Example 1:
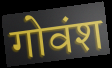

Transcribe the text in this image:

गोवंश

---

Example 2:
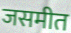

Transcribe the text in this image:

जसमीत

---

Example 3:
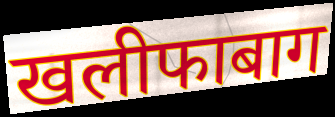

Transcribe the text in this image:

खलीफाबाग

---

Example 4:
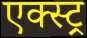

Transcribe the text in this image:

एक्स्ट्र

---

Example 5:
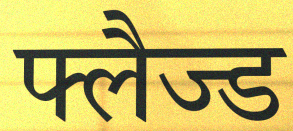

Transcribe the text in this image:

फ्लैज्ड